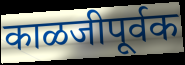
काळजीपूर्वक